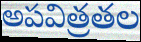
అపవిత్రతల